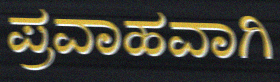
ಪ್ರವಾಹವಾಗಿ